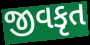
જીવકૃત